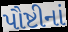
પૌષ્ટીનાં